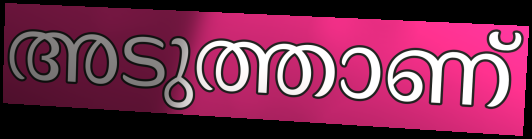
അടുത്താണ്